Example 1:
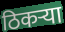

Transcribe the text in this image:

ठिकर्‍या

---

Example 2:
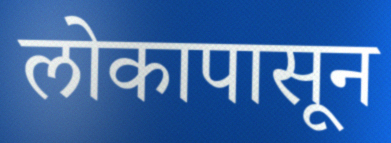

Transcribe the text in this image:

लोकापासून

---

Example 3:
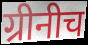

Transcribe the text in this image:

ग्रीनीच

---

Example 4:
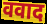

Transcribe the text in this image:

ववाद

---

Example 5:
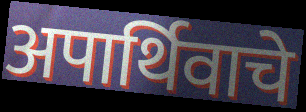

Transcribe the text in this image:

अपार्थिवाचे